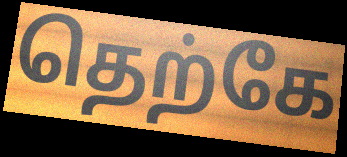
தெற்கே